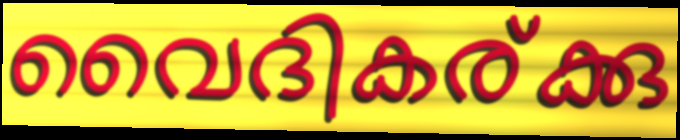
വൈദികര്ക്കു